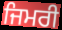
ਜਿਮਰੀ